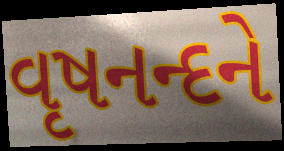
વૃષનન્દને